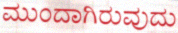
ಮುಂದಾಗಿರುವುದು